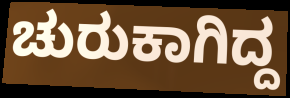
ಚುರುಕಾಗಿದ್ದ